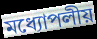
মধ্যোপলীয়